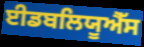
ਈਡਬਲਿਯੂਐੱਸ